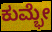
ಕುಮ್ಭೇ